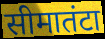
सीमातंटा